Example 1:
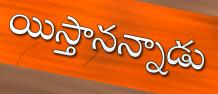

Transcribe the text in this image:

యిస్తానన్నాడు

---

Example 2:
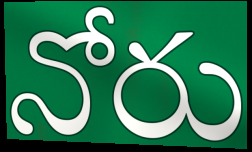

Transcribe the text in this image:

నోరు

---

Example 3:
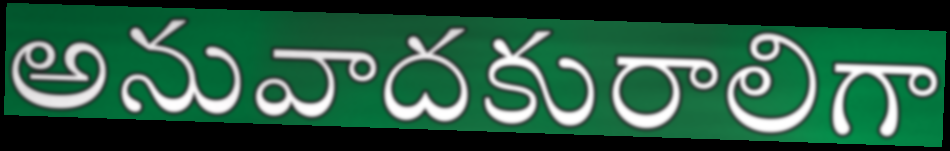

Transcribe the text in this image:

అనువాదకురాలిగా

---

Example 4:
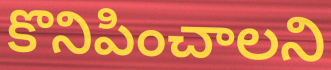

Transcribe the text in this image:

కొనిపించాలని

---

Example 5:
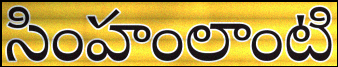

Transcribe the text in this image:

సింహంలాంటి